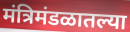
मंत्रिमंडळातल्या